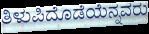
ತಿಳುಪಿದೊಡೆಯೆನ್ನವರು